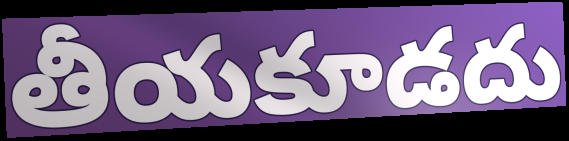
తీయకూడదు